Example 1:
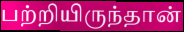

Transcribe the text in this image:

பற்றியிருந்தான்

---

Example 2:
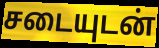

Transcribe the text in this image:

சடையுடன்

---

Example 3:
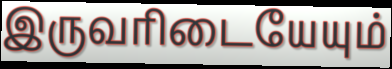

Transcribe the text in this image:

இருவரிடையேயும்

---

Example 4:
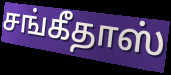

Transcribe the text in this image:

சங்கீதாஸ்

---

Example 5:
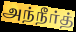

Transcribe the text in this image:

அந்நீர்த்